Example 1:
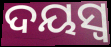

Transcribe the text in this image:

ଦୟସ୍ଵ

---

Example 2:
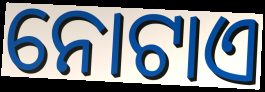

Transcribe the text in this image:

ନୋଟାଏ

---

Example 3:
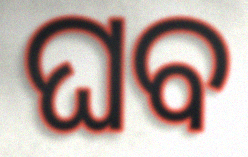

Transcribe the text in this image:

ଘବ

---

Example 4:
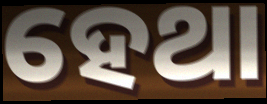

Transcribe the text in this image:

ହେଥା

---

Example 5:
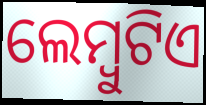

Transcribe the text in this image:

ଲେମ୍ବୁଟିଏ